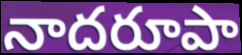
నాదరూపా